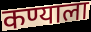
कण्याला